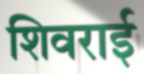
शिवराई